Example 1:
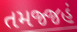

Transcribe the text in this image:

તમજ્જહં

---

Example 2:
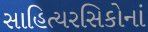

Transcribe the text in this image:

સાહિત્યરસિકોનાં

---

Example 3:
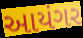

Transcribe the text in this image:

આયંગર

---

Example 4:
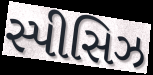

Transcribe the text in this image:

સ્પીસિઝ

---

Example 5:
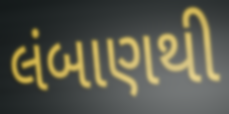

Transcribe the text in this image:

લંબાણથી